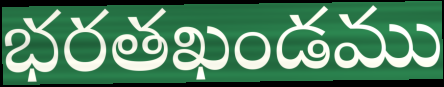
భరతఖండము